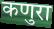
कणुरा